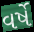
વર્ષે